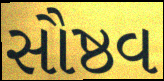
સૌષ્ઠવ